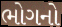
ભોગનો